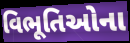
વિભૂતિઓના